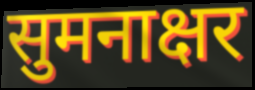
सुमनाक्षर